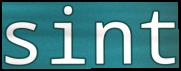
sint